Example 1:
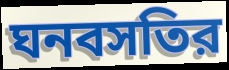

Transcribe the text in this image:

ঘনবসতির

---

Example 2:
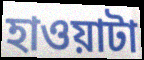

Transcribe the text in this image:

হাওয়াটা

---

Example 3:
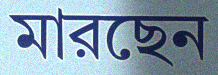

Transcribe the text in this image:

মারছেন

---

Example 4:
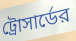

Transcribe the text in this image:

ট্রোসার্ডের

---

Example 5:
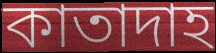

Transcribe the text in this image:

কাতাদাহ